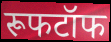
रूफटॉफ